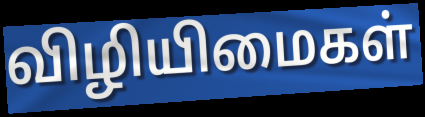
விழியிமைகள்